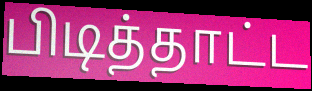
பிடித்தாட்ட